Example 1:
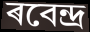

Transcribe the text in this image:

ৰবেন্দ্ৰ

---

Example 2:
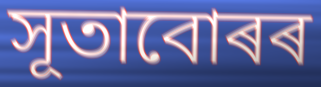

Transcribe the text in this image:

সূতাবোৰৰ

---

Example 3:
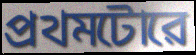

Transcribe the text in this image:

প্ৰথমটোৱে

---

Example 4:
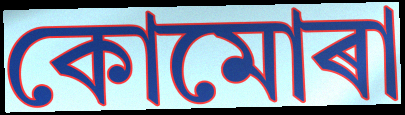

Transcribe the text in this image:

কোমোৰা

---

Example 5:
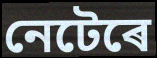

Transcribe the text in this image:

নেটেৰে